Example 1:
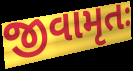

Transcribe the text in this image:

જીવામૃતઃ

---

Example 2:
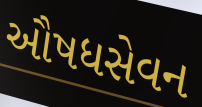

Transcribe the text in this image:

ઔષધસેવન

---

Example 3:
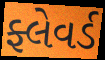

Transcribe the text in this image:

ફ્લેવર્ડ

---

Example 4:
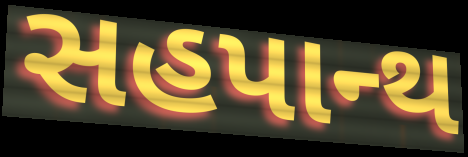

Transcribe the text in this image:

સહપાન્થ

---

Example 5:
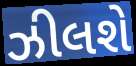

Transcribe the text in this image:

ઝીલશે